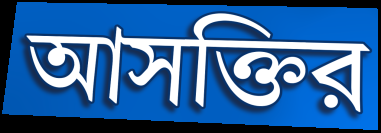
আসক্তির